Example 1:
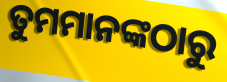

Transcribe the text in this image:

ତୁମମାନଙ୍କଠାରୁ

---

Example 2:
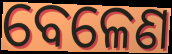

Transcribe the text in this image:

ବେଳେଣ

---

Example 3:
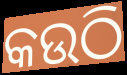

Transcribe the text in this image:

କଉଠି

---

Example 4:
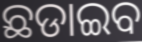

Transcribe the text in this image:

ଛଡାଇବ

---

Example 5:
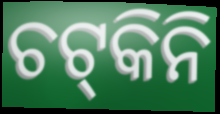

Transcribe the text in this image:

ଚଟ୍‍କିନି